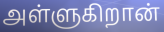
அள்ளுகிறான்